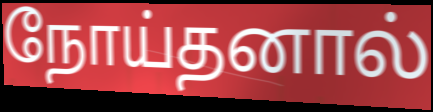
நோய்தனால்